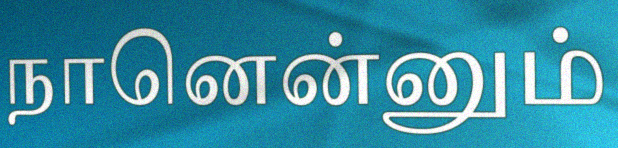
நானென்னும்